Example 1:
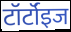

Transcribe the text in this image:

टॉर्टॉइज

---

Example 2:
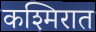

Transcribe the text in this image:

कश्मिरात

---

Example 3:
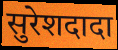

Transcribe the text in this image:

सुरेशदादा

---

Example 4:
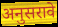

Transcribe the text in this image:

अनुसरावे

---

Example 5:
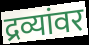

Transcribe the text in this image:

द्रव्यांवर